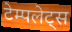
टेम्पलेट्स